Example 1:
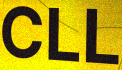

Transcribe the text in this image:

CLL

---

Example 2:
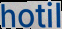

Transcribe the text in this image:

hotil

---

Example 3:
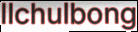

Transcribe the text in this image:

Ilchulbong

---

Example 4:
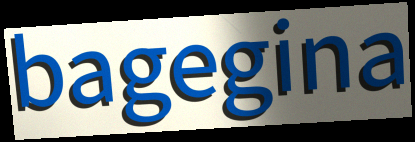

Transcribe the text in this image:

bagegina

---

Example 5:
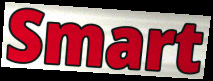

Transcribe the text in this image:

Smart